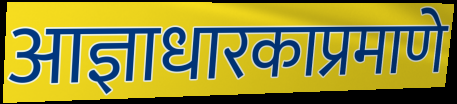
आज्ञाधारकाप्रमाणे